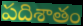
పదిశాతం